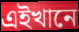
এইখানে